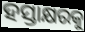
ହସ୍ତାକ୍ଷରକୁ